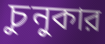
চুনুকার